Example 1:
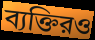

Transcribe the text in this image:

ব্যক্তিরও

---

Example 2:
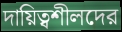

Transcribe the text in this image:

দায়িত্বশীলদের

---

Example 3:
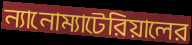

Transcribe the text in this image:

ন্যানোম্যাটেরিয়ালের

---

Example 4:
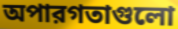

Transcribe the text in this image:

অপারগতাগুলো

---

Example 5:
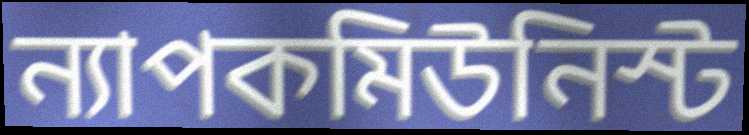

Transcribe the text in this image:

ন্যাপকমিউনিস্ট